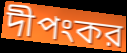
দীপংকর